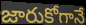
జారుకోగానే